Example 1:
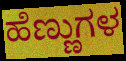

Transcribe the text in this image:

ಹೆಣ್ಣುಗಳ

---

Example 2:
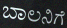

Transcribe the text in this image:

ಬಾಲನಿಗೆ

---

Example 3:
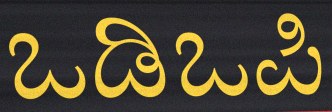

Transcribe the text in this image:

ಒಡಿಒಪಿ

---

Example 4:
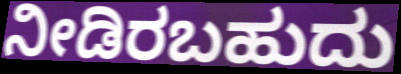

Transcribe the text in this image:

ನೀಡಿರಬಹುದು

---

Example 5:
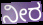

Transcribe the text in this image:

ನೀರ